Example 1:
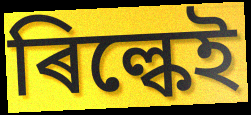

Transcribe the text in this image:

ৰিল্কেই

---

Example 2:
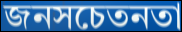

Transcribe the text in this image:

জনসচেতনতা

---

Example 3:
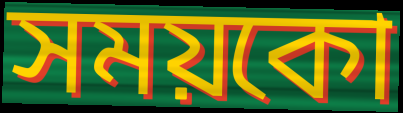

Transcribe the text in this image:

সময়কো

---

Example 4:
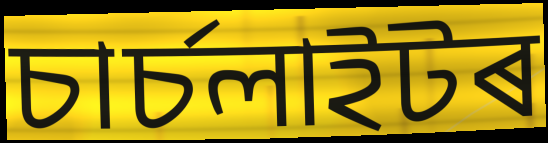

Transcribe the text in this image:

চাৰ্চলাইটৰ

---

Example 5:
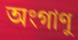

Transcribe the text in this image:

অংগাণু